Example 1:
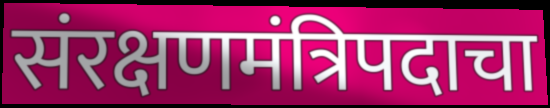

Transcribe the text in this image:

संरक्षणमंत्रिपदाचा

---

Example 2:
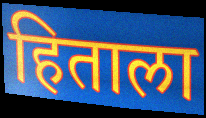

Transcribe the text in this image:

हिताला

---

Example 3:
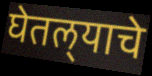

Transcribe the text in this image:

घेतल्याचे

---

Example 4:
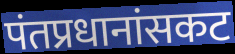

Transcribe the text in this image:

पंतप्रधानांसकट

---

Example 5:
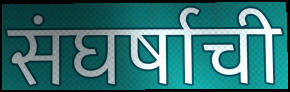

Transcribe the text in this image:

संघर्षाची